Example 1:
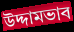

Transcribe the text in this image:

উদ্দামভাব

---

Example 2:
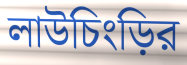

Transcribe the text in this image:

লাউচিংড়ির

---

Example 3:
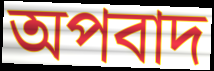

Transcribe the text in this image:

অপবাদ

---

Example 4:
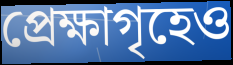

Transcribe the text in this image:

প্রেক্ষাগৃহেও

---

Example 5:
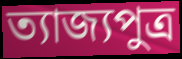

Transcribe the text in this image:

ত্যাজ্যপুত্র